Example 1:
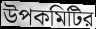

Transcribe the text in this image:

উপকমিটির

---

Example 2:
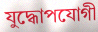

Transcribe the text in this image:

যুদ্ধোপযোগী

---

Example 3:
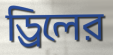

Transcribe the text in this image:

ড্রিলের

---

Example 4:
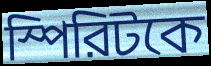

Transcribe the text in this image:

স্পিরিটকে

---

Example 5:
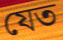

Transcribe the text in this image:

যেত